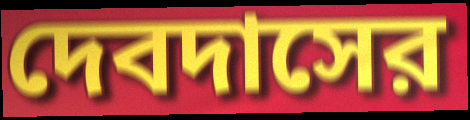
দেবদাসের